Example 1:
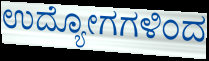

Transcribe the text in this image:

ಉದ್ಯೋಗಗಳಿಂದ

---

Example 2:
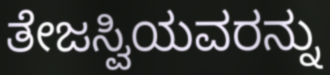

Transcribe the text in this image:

ತೇಜಸ್ವಿಯವರನ್ನು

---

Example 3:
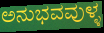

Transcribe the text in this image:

ಅನುಭವವುಳ್ಳ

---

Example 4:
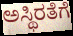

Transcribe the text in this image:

ಅಸ್ಥಿರತೆಗೆ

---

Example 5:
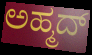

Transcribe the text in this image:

ಅಹ್ಮದ್